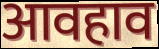
आवहाव